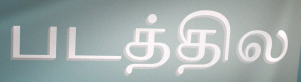
படத்தில